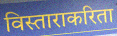
विस्ताराकरिता